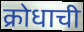
क्रोधाची